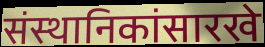
संस्थानिकांसारखे